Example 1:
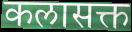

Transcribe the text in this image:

कलासक्त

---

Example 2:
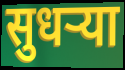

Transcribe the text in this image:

सुधर्‍या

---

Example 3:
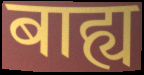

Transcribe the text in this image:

बाह्य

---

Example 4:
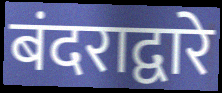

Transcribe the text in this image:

बंदराद्वारे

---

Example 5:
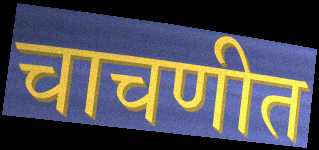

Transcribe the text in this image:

चाचणीत